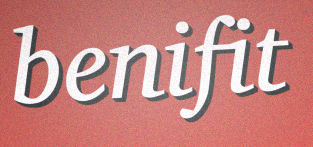
benifit